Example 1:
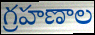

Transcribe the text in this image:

గ్రహణాల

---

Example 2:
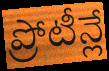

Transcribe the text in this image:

ప్రోటీన్లే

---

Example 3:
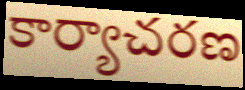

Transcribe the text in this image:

కార్యాచరణ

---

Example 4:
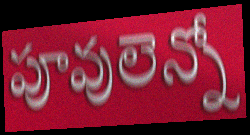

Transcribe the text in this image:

పూవులెన్నో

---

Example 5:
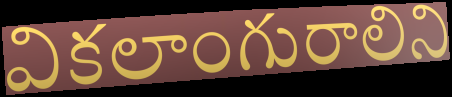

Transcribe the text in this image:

వికలాంగురాలిని